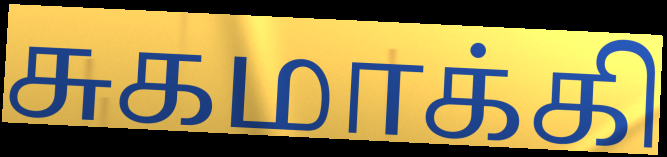
சுகமாக்கி